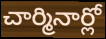
చార్మినార్లో